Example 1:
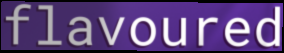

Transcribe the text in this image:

flavoured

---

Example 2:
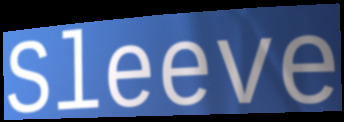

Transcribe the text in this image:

Sleeve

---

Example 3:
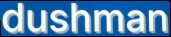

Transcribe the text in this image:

dushman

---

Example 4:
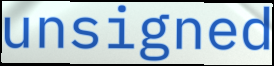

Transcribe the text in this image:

unsigned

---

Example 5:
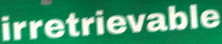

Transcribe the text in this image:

irretrievable